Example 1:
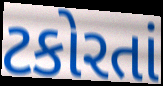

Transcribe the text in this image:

ટકોરતાં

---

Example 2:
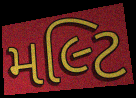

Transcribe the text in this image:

મલ્ટિ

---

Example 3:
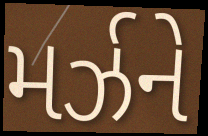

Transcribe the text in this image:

મર્ઝને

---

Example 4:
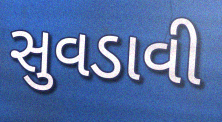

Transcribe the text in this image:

સુવડાવી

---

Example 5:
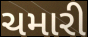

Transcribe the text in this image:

ચમારી